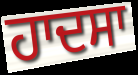
ਹਾਦਸਾ